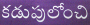
కడుపులోంచి